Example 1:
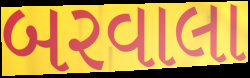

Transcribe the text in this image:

બરવાલા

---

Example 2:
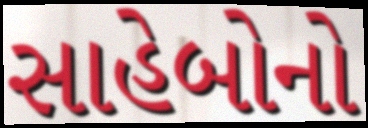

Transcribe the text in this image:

સાહેબોનો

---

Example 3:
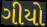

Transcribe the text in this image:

ગીયો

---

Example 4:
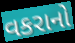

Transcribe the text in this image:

વકરાનો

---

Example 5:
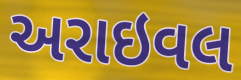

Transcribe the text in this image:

અરાઇવલ